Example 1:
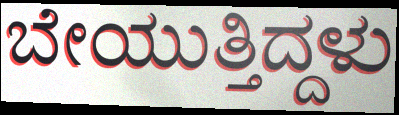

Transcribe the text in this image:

ಬೇಯುತ್ತಿದ್ದಳು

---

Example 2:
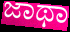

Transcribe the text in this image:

ಜಾಥಾ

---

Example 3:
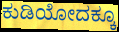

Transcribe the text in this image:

ಕುಡಿಯೋದಕ್ಕೂ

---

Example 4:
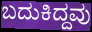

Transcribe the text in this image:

ಬದುಕಿದ್ದವು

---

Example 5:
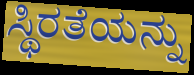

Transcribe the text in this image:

ಸ್ಥಿರತೆಯನ್ನು